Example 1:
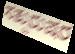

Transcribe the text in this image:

ಸತ್ಪುರುಷರ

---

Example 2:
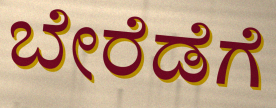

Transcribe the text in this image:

ಬೇರೆಡೆಗೆ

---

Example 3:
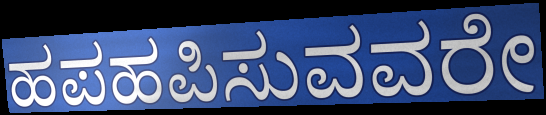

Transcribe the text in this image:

ಹಪಹಪಿಸುವವರೇ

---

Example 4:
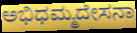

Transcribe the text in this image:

ಅಭಿಧಮ್ಮದೇಸನಾ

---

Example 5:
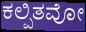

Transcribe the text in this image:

ಕಲ್ಪಿತವೋ